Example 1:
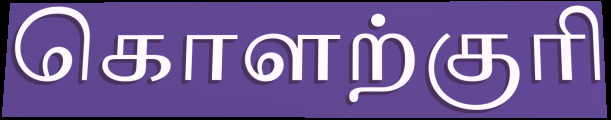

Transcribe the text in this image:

கொளற்குரி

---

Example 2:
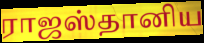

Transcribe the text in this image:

ராஜஸ்தானிய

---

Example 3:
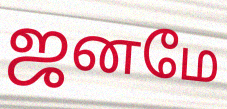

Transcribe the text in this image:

ஜனமே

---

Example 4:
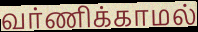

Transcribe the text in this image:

வர்ணிக்காமல்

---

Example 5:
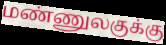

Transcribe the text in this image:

மண்ணுலகுக்கு